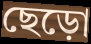
ছেড়ো